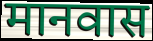
मानवास